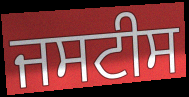
ਜਸਟੀਸ